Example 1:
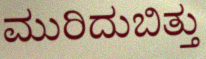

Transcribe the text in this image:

ಮುರಿದುಬಿತ್ತು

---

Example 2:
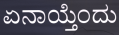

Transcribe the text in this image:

ಏನಾಯ್ತೆಂದು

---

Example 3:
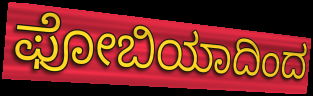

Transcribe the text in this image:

ಫೋಬಿಯಾದಿಂದ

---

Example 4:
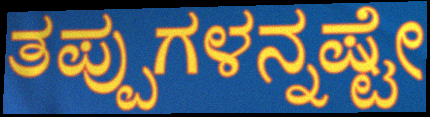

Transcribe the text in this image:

ತಪ್ಪುಗಳನ್ನಷ್ಟೇ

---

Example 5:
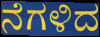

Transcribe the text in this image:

ನೆಗಳಿದ